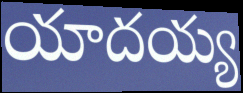
యాదయ్య